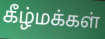
கீழ்மக்கள்